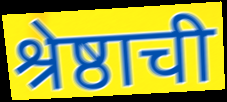
श्रेष्ठाची